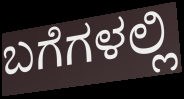
ಬಗೆಗಳಲ್ಲಿ